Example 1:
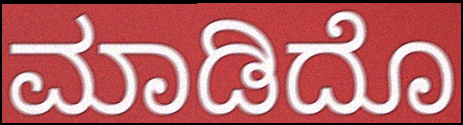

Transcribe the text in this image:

ಮಾಡಿದೊ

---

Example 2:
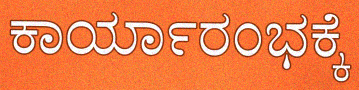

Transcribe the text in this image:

ಕಾರ್ಯಾರಂಭಕ್ಕೆ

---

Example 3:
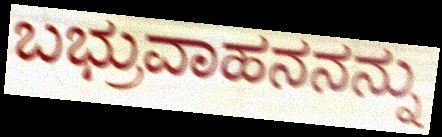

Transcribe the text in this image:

ಬಭ್ರುವಾಹನನನ್ನು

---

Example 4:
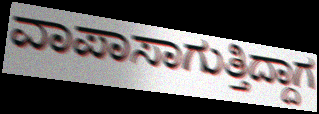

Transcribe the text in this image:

ವಾಪಾಸಾಗುತ್ತಿದ್ದಾಗ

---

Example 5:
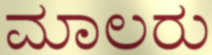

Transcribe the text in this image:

ಮಾಲರು